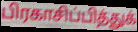
பிரகாசிப்பித்துக்